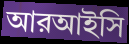
আরআইসি